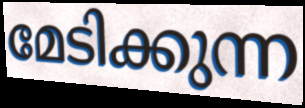
മേടിക്കുന്ന